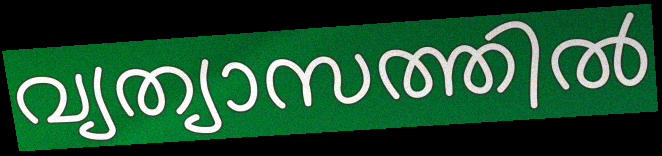
വ്യത്യാസത്തിൽ